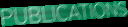
PUBLICATIONS